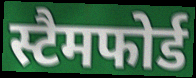
स्टैमफोर्ड